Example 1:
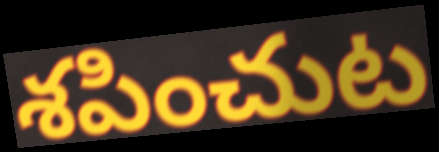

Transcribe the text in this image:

శపించుట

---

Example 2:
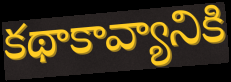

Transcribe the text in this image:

కథాకావ్యానికి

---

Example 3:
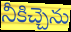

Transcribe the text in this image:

నీకిచ్చెను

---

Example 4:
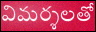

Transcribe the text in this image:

విమర్శలతో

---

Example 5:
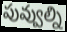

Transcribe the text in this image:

పువ్వుల్ని